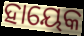
ହାୟେକ